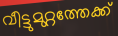
വീട്ടുമുറ്റത്തേക്ക്